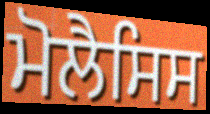
ਮੋਲੈਸਿਸ